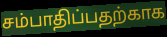
சம்பாதிப்பதற்காக